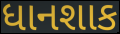
ધાનશાક